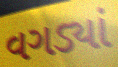
વગડ્યાં